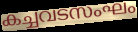
കച്ചവടസംഘം